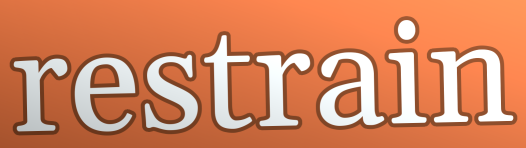
restrain